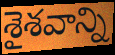
శైశవాన్ని